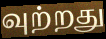
வுற்றது